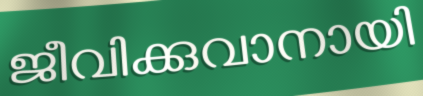
ജീവിക്കുവാനായി